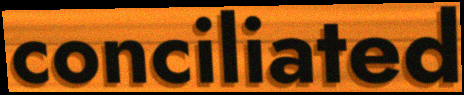
conciliated